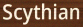
Scythian